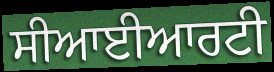
ਸੀਆਈਆਰਟੀ